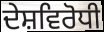
ਦੇਸ਼ਵਿਰੋਧੀ